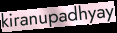
kiranupadhyay